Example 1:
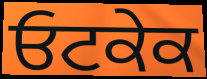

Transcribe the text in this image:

ਓਟਕੇਕ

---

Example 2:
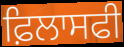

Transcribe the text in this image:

ਫ਼ਿਲਾਸਫੀ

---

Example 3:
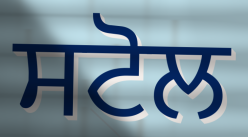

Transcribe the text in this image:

ਸਟੋਲ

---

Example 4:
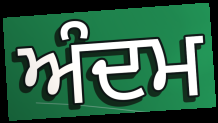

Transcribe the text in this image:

ਅੰਦਮ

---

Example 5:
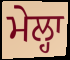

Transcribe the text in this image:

ਮੇਲ੍ਹਾ